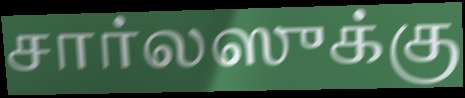
சார்லஸுக்கு